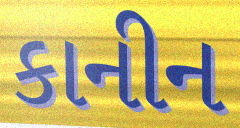
કાનીન